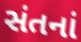
સંતનાં